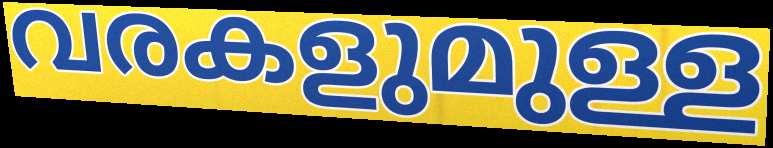
വരകളുമുള്ള